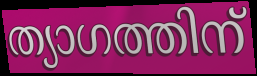
ത്യാഗത്തിന്